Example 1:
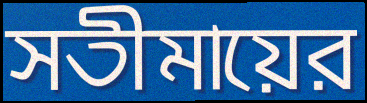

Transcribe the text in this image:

সতীমায়ের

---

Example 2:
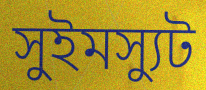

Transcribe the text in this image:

সুইমস্যুট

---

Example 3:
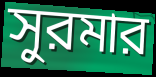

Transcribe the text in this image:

সুরমার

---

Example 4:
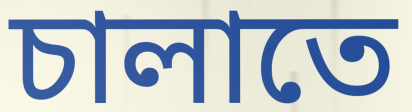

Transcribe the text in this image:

চালাতে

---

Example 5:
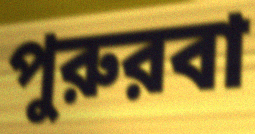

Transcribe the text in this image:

পুরুরবা